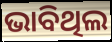
ଭାବିଥିଲ